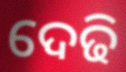
ଦେଢି